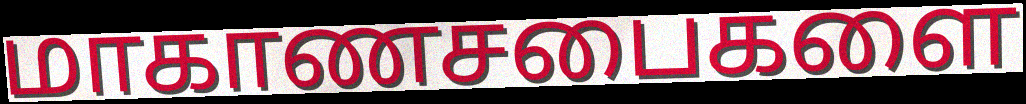
மாகாணசபைகளை